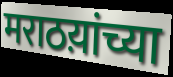
मराठय़ांच्या